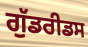
ਗੁੱਡਰੀਡਸ